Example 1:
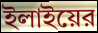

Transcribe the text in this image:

ইলাইয়ের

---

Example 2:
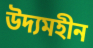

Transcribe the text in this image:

উদ্যমহীন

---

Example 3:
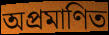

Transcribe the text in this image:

অপ্রমাণিত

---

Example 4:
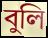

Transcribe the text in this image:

বুলি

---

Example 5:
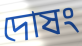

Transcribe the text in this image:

দোষং